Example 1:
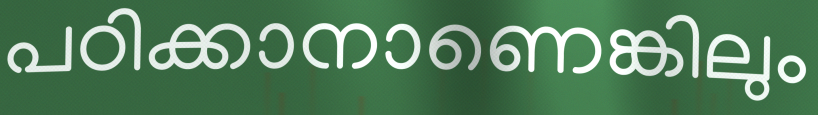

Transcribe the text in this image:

പഠിക്കാനാണെങ്കിലും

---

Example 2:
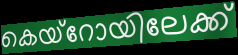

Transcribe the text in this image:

കെയ്റോയിലേക്ക്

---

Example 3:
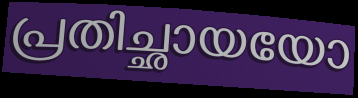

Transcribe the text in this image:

പ്രതിച്ഛായയോ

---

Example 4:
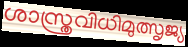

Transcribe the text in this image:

ശാസ്ത്രവിധിമുത്സൃജ്യ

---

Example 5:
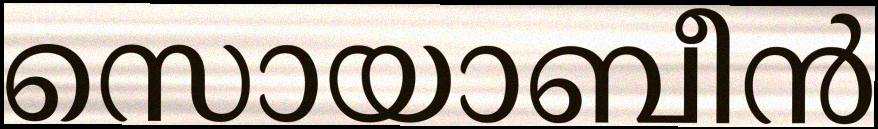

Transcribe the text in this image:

സൊയാബീൻ